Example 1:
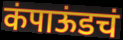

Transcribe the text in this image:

कंपाऊंडचं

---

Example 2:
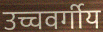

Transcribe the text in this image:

उच्चवर्गीय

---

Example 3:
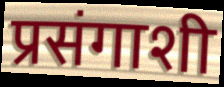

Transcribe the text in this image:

प्रसंगाशी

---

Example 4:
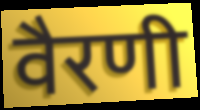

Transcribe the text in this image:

वैरणी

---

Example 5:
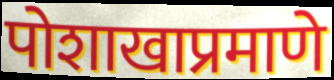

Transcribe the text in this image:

पोशाखाप्रमाणे